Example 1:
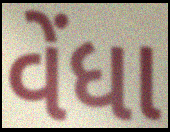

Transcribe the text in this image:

વેંધા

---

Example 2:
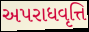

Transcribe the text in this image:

અપરાધવૃત્તિ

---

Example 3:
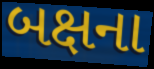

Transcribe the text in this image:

બક્ષના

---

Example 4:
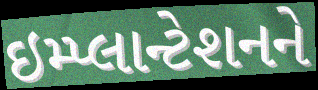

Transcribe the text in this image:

ઇમ્પ્લાન્ટેશનને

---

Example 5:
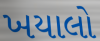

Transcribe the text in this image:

ખયાલો